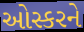
ઓસ્કરને